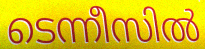
ടെന്നീസിൽ